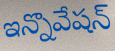
ఇన్నొవేషన్